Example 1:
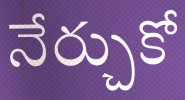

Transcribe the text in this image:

నేర్చుకో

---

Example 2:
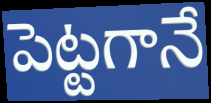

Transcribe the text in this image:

పెట్టగానే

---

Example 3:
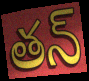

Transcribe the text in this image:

తన్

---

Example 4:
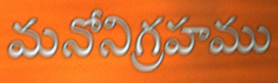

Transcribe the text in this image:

మనోనిగ్రహము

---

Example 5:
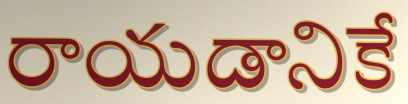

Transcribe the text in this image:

రాయడానికే